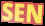
SEN